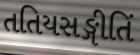
તતિયસઙ્ગીતિં